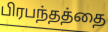
பிரபந்தத்தை